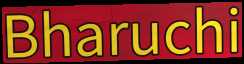
Bharuchi